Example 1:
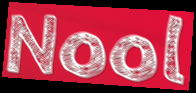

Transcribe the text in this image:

Nool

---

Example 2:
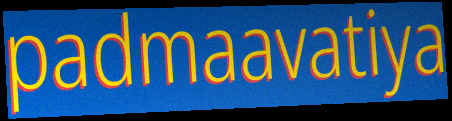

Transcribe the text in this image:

padmaavatiya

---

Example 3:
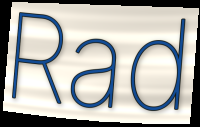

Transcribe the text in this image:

Rad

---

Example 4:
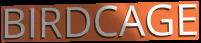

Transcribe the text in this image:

BIRDCAGE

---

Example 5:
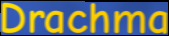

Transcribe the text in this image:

Drachma